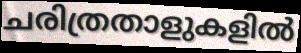
ചരിത്രതാളുകളിൽ